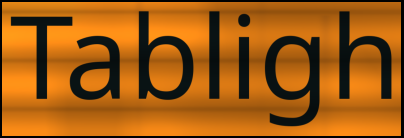
Tabligh